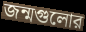
জন্মগুলোর